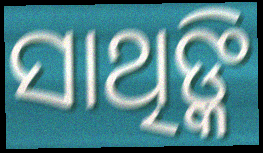
ସାଥିଙ୍କି